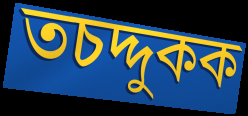
তচদ্দুকক